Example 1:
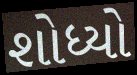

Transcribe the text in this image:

શોધ્યો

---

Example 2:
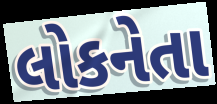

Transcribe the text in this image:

લોકનેતા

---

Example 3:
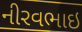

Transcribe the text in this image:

નીરવભાઇ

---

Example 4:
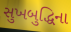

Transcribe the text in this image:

સુખબુદ્ધિના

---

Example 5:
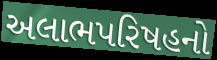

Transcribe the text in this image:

અલાભપરિષહનો